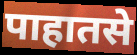
पाहातसे